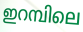
ഇറമ്പിലെ